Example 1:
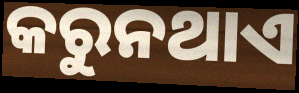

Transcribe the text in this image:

କରୁନଥାଏ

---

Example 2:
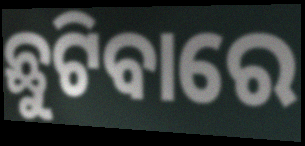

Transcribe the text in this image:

ଛୁଟିବାରେ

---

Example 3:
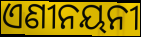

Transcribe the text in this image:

ଏଣୀନୟନୀ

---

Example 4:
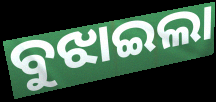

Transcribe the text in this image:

ବୁଝାଇଲା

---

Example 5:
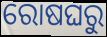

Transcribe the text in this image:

ରୋଷଘରୁ